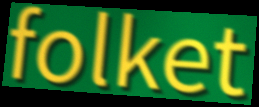
folket